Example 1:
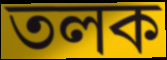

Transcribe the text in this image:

তলক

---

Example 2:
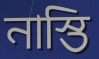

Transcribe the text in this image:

নাস্তি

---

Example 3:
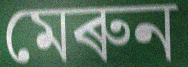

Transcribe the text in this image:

মেৰুন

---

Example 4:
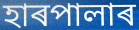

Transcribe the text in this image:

হাৰপালাৰ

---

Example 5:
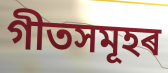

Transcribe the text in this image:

গীতসমূহৰ